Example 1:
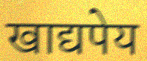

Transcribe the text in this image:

खाद्यपेय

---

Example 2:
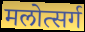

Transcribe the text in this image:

मलोत्सर्ग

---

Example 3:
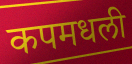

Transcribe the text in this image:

कपमधली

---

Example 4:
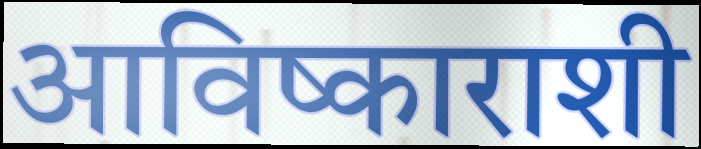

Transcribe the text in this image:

आविष्काराशी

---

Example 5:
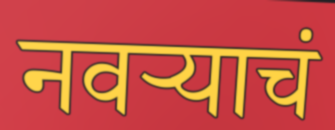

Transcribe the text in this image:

नवर्‍याचं